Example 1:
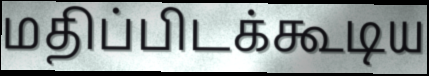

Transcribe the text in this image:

மதிப்பிடக்கூடிய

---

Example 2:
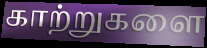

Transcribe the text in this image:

காற்றுகளை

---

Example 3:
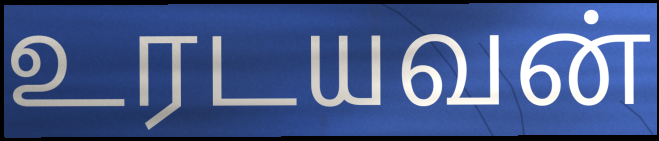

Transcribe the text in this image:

உரடயவன்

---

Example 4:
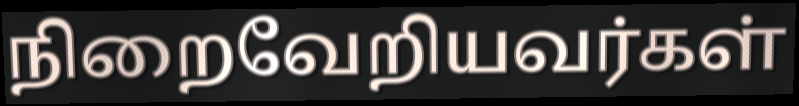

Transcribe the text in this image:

நிறைவேறியவர்கள்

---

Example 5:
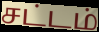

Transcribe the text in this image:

சட்டம்